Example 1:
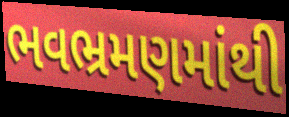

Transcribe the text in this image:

ભવભ્રમણમાંથી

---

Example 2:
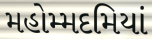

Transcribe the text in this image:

મહોમ્મદમિયાં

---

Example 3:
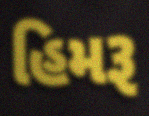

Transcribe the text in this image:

હિમરૂ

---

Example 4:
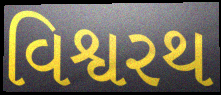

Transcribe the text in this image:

વિશ્વરથ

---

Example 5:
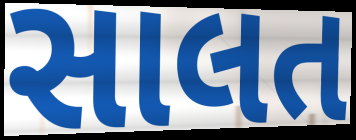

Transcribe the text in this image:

સાલત